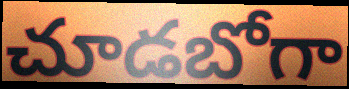
చూడబోగా